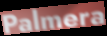
Palmera